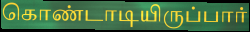
கொண்டாடியிருப்பார்